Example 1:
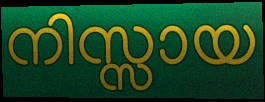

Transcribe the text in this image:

നിസ്സായ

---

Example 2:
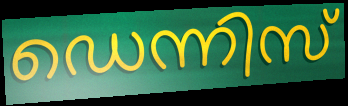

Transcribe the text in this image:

ഡെന്നിസ്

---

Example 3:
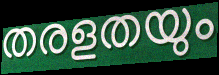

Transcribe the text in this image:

തരളതയും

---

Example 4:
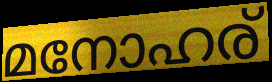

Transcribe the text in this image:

മനോഹര്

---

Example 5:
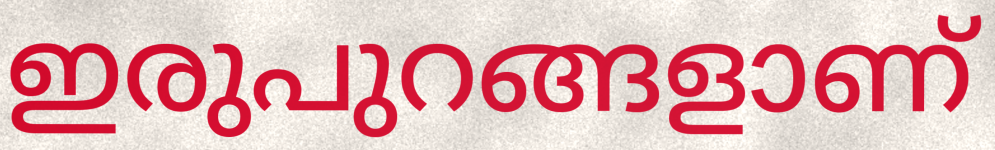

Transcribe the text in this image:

ഇരുപുറങ്ങളാണ്